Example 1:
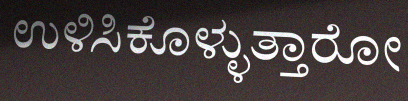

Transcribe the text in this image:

ಉಳಿಸಿಕೊಳ್ಳುತ್ತಾರೋ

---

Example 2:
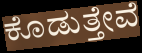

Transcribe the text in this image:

ಕೊಡುತ್ತೇವೆ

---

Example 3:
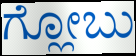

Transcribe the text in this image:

ಗ್ಲೋಬು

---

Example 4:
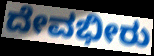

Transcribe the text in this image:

ದೇವಭೀರು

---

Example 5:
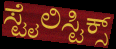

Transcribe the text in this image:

ಸ್ಟೈಲಿಸ್ಟಿಕ್ಸ್